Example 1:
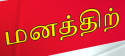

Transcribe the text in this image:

மனத்திற்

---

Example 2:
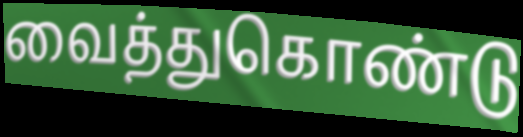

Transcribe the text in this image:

வைத்துகொண்டு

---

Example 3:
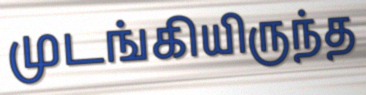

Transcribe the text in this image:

முடங்கியிருந்த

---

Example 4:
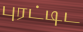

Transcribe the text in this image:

புரட்டிட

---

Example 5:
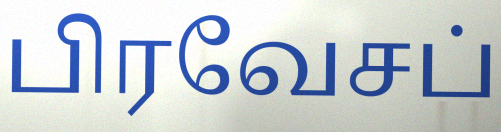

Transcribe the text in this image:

பிரவேசப்